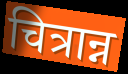
चित्रान्न